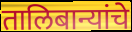
तालिबान्यांचे